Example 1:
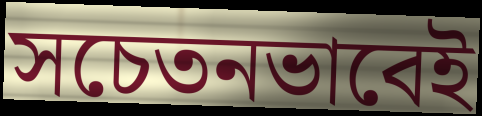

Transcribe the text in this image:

সচেতনভাবেই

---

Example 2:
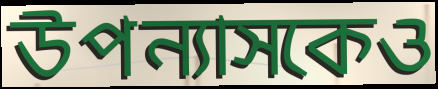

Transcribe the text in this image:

উপন্যাসকেও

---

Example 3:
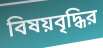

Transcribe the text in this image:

বিষয়বৃদ্ধির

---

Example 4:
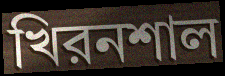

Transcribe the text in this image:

খিরনশাল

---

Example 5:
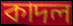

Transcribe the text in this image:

কাদল